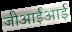
जीआईआई